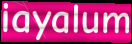
iayalum